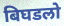
बिघडलो